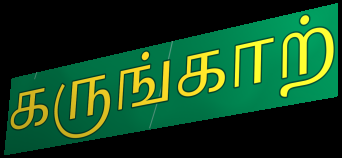
கருங்காற்